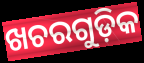
ଖଚରଗୁଡ଼ିକ